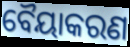
ବୈୟାକରଣ